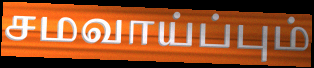
சமவாய்ப்பும்